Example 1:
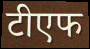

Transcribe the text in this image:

टीएफ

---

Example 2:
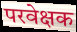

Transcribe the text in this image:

परवेक्षक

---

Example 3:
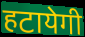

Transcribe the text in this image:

हटायेगी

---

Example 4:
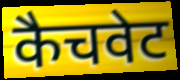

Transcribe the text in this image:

कैचवेट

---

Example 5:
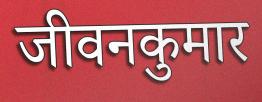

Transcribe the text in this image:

जीवनकुमार